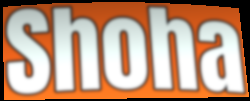
Shoha